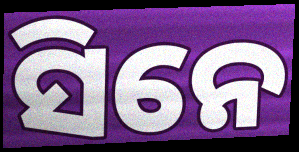
ସିନେ